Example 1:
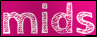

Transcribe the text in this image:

mids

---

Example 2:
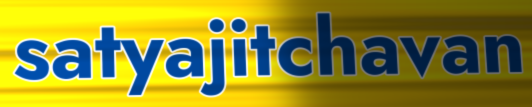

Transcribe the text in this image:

satyajitchavan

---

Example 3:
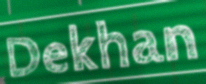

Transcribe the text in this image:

Dekhan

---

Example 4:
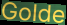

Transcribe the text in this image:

Golde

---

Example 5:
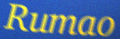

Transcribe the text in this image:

Rumao